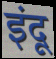
इंदू